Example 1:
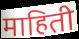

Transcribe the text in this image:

माहिती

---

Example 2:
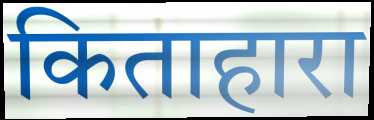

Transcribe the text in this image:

किताहारा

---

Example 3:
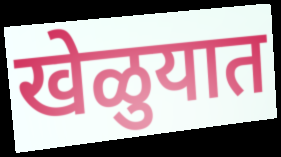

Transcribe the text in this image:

खेळुयात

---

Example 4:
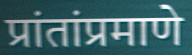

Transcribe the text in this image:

प्रांतांप्रमाणे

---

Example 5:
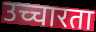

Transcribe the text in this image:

उच्चारता